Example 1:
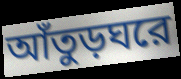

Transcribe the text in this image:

আঁতুড়ঘরে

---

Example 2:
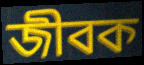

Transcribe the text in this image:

জীবক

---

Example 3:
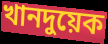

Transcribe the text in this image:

খানদুয়েক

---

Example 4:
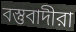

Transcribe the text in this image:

বস্তুবাদীরা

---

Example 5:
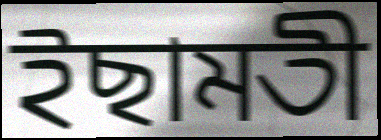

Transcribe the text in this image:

ইছামতী